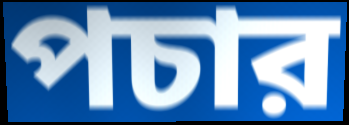
পচার